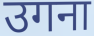
उगना